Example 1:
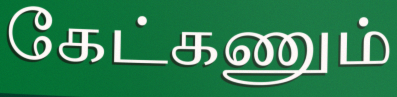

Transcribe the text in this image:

கேட்கணும்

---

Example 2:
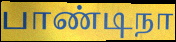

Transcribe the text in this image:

பாண்டிநா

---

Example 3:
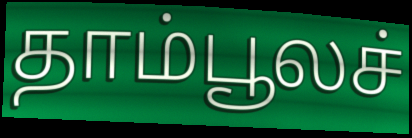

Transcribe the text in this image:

தாம்பூலச்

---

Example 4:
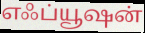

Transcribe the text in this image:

எஃப்யூஷன்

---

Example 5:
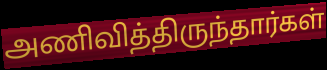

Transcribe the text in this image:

அணிவித்திருந்தார்கள்